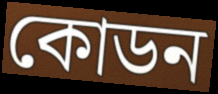
কোডন